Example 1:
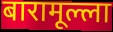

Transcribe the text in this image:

बारामूल्ला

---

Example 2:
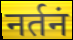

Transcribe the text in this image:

नर्तनं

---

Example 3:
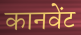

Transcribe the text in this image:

कानवेंट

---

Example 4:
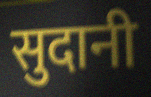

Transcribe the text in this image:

सुदानी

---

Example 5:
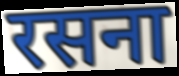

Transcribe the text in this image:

रसना